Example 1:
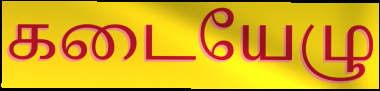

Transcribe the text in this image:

கடையேழு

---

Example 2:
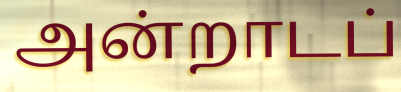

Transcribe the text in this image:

அன்றாடப்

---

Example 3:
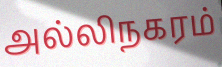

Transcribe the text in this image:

அல்லிநகரம்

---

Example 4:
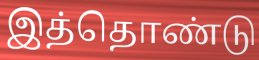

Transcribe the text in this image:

இத்தொண்டு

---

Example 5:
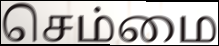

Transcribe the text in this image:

செம்மை